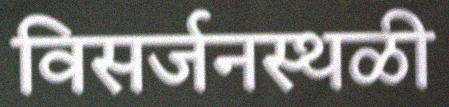
विसर्जनस्थळी